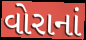
વોરાનાં